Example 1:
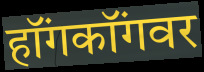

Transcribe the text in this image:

हॉंगकॉंगवर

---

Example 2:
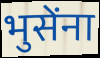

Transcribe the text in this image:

भुसेंना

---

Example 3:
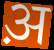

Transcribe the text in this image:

अ़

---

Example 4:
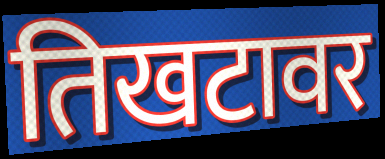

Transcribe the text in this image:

तिखटावर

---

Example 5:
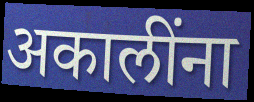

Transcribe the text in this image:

अकालींना